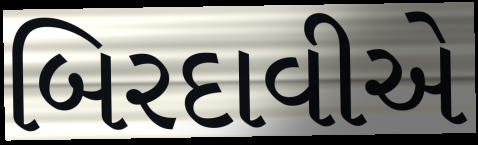
બિરદાવીએ